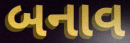
બનાવ